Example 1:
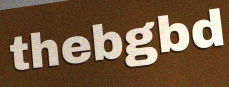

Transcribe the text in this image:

thebgbd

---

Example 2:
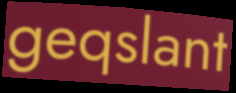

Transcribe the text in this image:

geqslant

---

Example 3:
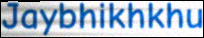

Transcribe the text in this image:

Jaybhikhkhu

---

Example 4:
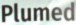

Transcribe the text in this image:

Plumed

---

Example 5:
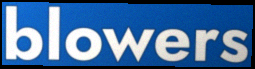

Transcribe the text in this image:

blowers